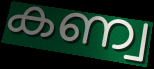
കണ്വ